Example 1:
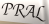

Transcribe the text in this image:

PRAL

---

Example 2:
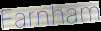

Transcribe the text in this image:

Farnham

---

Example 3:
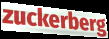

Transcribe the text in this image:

zuckerberg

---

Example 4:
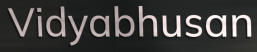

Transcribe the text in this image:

Vidyabhusan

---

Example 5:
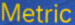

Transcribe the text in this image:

Metric